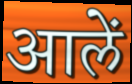
आलें